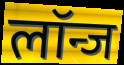
लॉन्ज